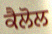
ਕੈਲੋਲ